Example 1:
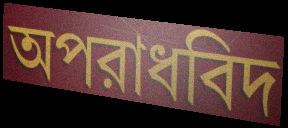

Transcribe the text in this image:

অপরাধবিদ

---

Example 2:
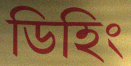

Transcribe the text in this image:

ডিহিং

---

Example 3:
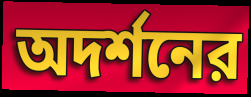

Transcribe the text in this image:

অদর্শনের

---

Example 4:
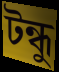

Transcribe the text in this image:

টন্ধু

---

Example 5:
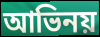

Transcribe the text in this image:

আভিনয়